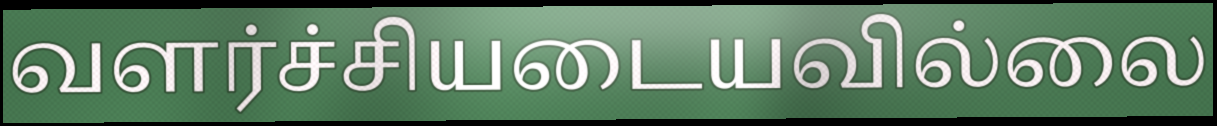
வளர்ச்சியடையவில்லை